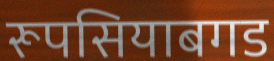
रूपसियाबगड